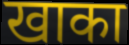
खाका